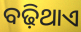
ବଢ଼ିଥାଏ